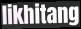
likhitang